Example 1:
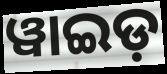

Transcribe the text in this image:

ୱାଇଡ଼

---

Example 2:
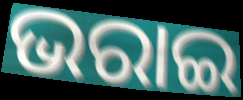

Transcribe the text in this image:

ଭରାଇ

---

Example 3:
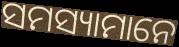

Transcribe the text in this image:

ସମସ୍ୟାମାନେ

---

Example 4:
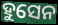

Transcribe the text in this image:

ହୁସେନ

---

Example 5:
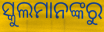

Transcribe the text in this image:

ସ୍କୁଲମାନଙ୍କରୁ